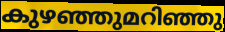
കുഴഞ്ഞുമറിഞ്ഞു